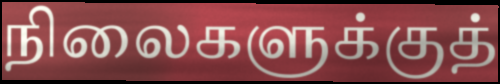
நிலைகளுக்குத்